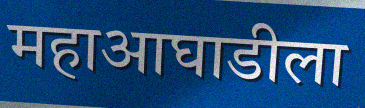
महाआघाडीला